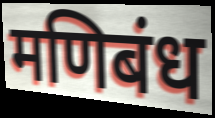
मणिबंध